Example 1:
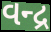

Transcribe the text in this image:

વન્દ્ર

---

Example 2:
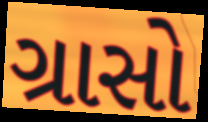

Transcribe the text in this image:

ગ્રાસો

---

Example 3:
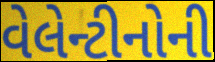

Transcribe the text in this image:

વેલેન્ટીનોની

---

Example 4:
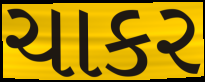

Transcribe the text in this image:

ચાકર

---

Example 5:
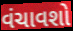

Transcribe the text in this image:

વંચાવશો